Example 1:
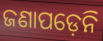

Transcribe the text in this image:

ଜଣାପଡ଼େନି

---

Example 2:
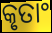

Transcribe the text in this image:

କୃତାଂ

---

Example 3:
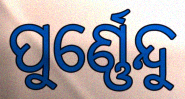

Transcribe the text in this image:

ପୁର୍ଣ୍ଣେନ୍ଦୁ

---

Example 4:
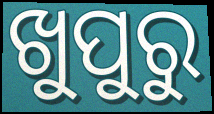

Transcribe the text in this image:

ଖୁପୁରୁ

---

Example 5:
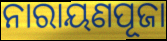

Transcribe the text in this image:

ନାରାୟଣପୂଜା